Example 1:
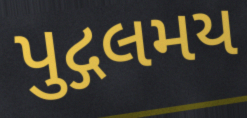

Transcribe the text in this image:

પુદ્ગલમય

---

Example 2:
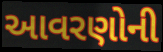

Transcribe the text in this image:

આવરણોની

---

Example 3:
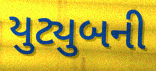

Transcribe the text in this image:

યુટ્યુબની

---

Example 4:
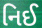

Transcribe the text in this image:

નિઈ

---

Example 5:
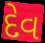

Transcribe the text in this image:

દેવ